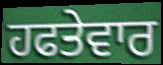
ਹਫਤੇਵਾਰ